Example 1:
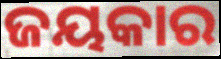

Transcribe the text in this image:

ଜୟକାର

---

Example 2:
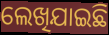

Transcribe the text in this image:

ଲେଖିଯାଇଛି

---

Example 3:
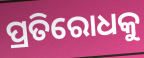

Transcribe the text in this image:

ପ୍ରତିରୋଧକୁ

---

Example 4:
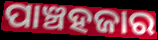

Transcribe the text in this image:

ପାଞ୍ଚହଜାର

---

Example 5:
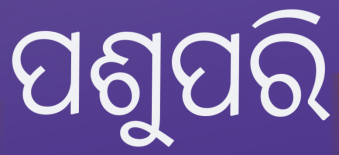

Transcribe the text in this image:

ପଶୁପରି